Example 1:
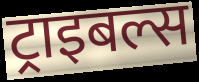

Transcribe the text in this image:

ट्राइबल्स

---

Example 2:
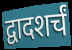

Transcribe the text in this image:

द्वादशर्चं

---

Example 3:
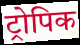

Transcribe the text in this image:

ट्रोपिक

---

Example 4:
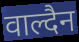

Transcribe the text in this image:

वाल्दैन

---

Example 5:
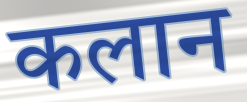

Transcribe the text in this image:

कलान